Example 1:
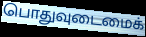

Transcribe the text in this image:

பொதுவுடைமைக்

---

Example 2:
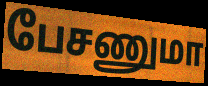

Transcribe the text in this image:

பேசணுமா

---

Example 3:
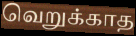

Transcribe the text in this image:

வெறுக்காத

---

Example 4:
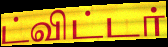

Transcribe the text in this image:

ட்விட்டர்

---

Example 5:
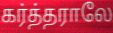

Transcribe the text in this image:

கர்த்தராலே